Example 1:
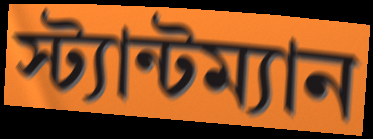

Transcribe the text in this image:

স্ট্যান্টম্যান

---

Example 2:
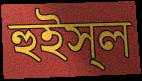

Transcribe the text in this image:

হুইস্‌ল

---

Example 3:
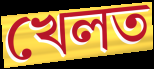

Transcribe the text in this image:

খেলত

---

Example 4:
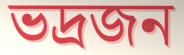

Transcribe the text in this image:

ভদ্রজন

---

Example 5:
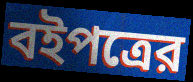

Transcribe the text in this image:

বইপত্রের